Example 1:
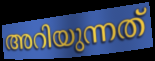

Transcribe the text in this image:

അറിയുന്നത്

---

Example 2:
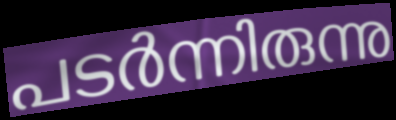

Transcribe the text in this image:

പടർന്നിരുന്നു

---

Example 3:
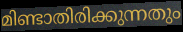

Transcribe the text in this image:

മിണ്ടാതിരിക്കുന്നതും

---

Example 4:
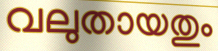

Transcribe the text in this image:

വലുതായതും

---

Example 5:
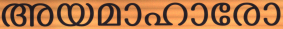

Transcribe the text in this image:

അയമാഹാരോ